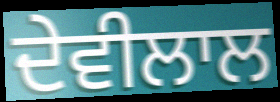
ਦੇਵੀਲਾਲ